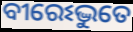
ବୀରେଽଦ୍ଭୁତେ